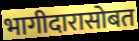
भागीदारासोबत